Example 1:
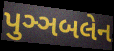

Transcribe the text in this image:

પુઞ્ઞબલેન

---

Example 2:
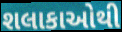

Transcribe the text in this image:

શલાકાઓથી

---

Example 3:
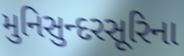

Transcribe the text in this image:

મુનિસુન્દરસૂરિના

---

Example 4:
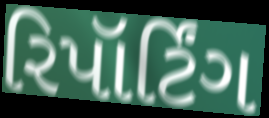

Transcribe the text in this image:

રિપૉર્ટિંગ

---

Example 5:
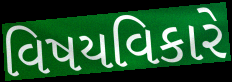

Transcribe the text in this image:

વિષયવિકારે